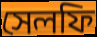
সেলফি